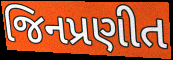
જિનપ્રણીત